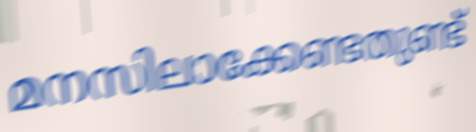
മനസിലാക്കേണ്ടതുണ്ട്